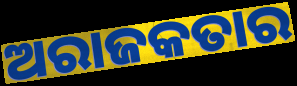
ଅରାଜକତାର